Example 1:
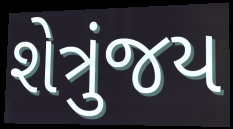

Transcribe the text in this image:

શેત્રુંજય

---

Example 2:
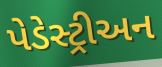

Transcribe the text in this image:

પેડેસ્ટ્રીઅન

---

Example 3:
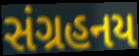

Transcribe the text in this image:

સંગ્રહનય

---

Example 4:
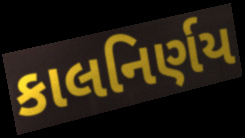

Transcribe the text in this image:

કાલનિર્ણય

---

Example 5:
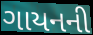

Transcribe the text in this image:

ગાયનની